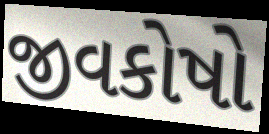
જીવકોષો